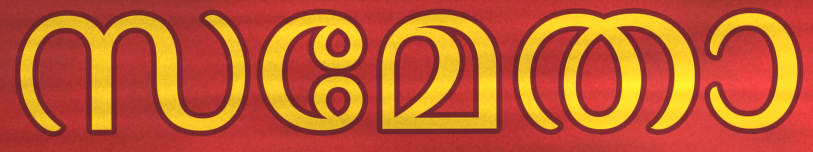
സമേതാ